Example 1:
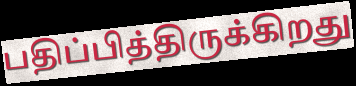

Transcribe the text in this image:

பதிப்பித்திருக்கிறது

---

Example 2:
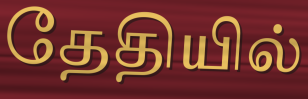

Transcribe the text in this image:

தேதியில்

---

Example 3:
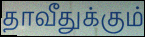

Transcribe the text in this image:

தாவீதுக்கும்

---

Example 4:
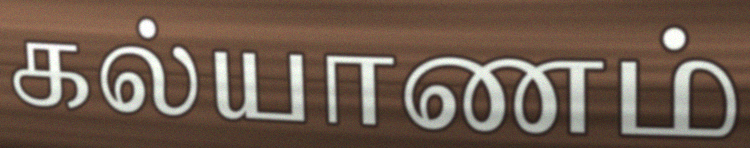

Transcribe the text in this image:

கல்யாணம்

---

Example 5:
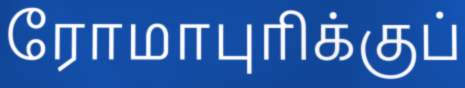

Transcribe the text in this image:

ரோமாபுரிக்குப்